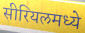
सीरियलमध्ये